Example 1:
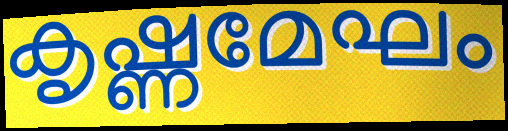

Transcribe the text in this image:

കൃഷ്ണമേഘം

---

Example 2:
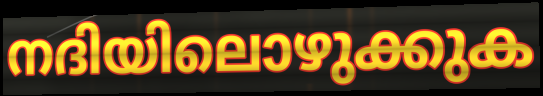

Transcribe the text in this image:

നദിയിലൊഴുക്കുക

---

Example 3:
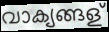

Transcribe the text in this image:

വാക്യങ്ങള്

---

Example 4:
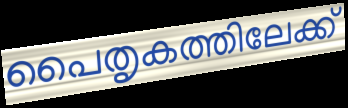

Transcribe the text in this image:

പൈതൃകത്തിലേക്ക്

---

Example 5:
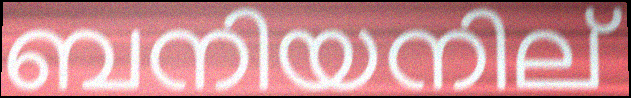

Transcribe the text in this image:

ബനിയനില്